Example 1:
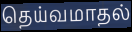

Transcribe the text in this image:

தெய்வமாதல்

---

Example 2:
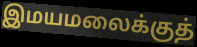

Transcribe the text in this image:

இமயமலைக்குத்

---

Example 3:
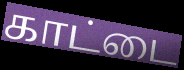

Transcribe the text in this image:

காட்டை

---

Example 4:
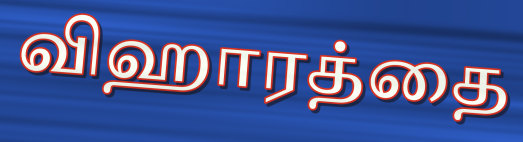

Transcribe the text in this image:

விஹாரத்தை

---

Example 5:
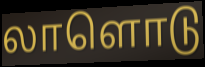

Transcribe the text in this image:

லாளொடு